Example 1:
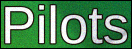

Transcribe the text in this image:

Pilots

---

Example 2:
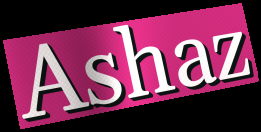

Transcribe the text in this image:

Ashaz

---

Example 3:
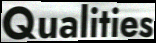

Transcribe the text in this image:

Qualities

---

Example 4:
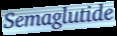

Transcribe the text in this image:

Semaglutide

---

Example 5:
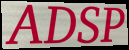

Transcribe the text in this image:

ADSP